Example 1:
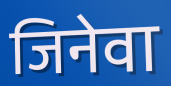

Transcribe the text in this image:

जिनेवा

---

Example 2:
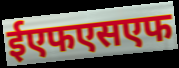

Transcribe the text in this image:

ईएफएसएफ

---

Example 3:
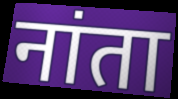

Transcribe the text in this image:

नांता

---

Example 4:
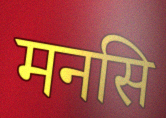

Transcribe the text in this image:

मनसि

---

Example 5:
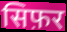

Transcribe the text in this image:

सिफ़र